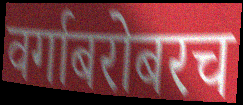
वर्गाबरोबरच